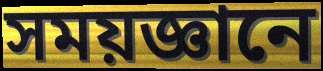
সময়জ্ঞানে